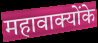
महावाक्योंके